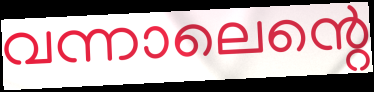
വന്നാലെന്റെ